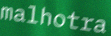
malhotra